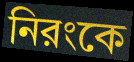
নিরংকে